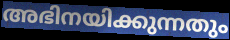
അഭിനയിക്കുന്നതും